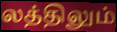
லத்திலும்